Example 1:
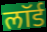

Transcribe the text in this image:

लॉर्ड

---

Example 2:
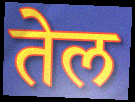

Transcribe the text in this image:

तेल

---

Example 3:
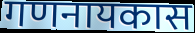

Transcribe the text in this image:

गणनायकास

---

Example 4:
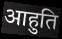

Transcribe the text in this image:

आहुति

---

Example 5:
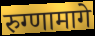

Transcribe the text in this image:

रुग्णामागे